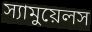
স্যামুয়েলস